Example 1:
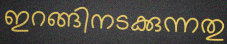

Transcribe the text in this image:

ഇറങ്ങിനടക്കുന്നതു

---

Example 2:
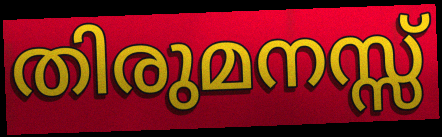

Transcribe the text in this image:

തിരുമനസ്സ്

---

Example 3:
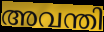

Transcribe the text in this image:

അവന്തി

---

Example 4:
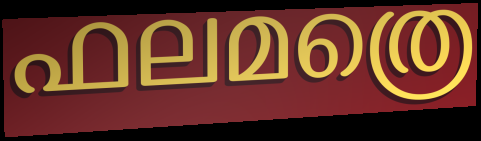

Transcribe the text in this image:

ഫലമത്രെ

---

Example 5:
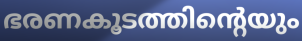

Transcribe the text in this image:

ഭരണകൂടത്തിന്റെയും